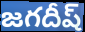
జగదీష్